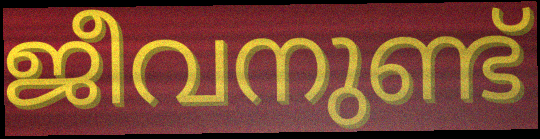
ജീവനുണ്ട്